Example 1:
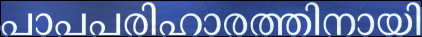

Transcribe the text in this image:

പാപപരിഹാരത്തിനായി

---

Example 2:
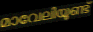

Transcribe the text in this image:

മാവേലിയുണ്ട്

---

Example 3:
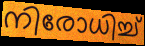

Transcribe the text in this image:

നിരോധിച്ച്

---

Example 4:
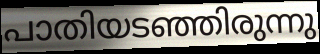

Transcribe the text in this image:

പാതിയടഞ്ഞിരുന്നു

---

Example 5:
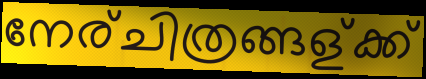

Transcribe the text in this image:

നേര്ചിത്രങ്ങള്ക്ക്